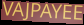
VAJPAYEE